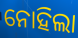
ନୋହିଲା